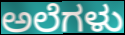
ಅಲೆಗಳು